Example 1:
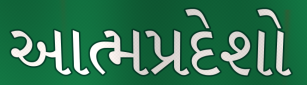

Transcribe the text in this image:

આત્મપ્રદેશો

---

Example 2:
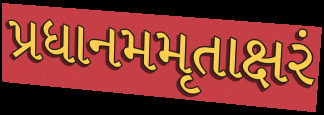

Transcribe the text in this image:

પ્રધાનમમૃતાક્ષરં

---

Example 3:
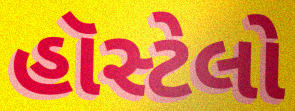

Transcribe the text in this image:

હૉસ્ટેલો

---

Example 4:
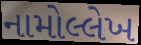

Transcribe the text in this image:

નામોલ્લેખ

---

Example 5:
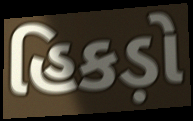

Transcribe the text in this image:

હિકડ઼ો